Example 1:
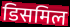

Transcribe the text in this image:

डिसमिल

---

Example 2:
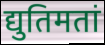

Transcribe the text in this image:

द्युतिमतां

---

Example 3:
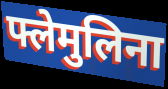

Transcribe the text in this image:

फ्लेमुलिना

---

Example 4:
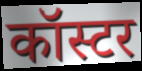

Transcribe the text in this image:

कॉस्टर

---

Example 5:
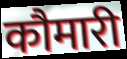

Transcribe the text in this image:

कौमारी